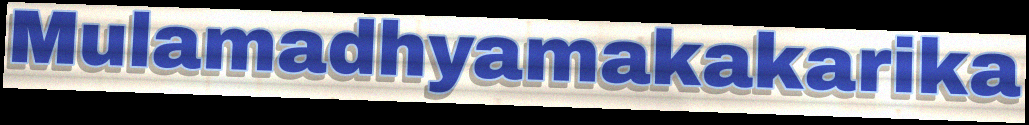
Mulamadhyamakakarika